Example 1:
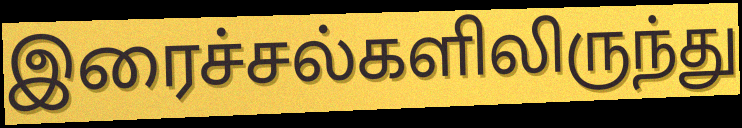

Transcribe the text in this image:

இரைச்சல்களிலிருந்து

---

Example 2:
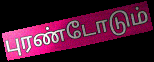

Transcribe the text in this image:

புரண்டோடும்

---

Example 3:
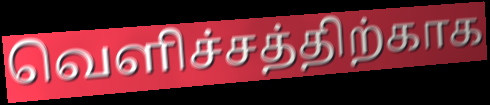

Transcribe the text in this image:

வெளிச்சத்திற்காக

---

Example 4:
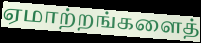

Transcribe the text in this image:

ஏமாற்றங்களைத்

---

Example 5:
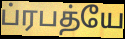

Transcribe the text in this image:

ப்ரபத்யே